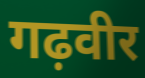
गढ़वीर